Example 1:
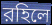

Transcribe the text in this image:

রহিলে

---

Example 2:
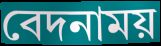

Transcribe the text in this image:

বেদনাময়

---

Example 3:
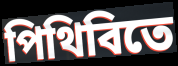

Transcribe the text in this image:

পিথিবিতে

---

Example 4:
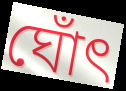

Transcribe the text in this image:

ঘোঁৎ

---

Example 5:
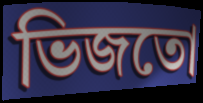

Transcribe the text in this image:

ভিজতো